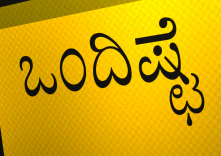
ಒಂದಿಷ್ಟೆ